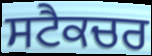
ਸਟੈਕਚਰ